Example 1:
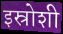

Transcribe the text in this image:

इस्रोशी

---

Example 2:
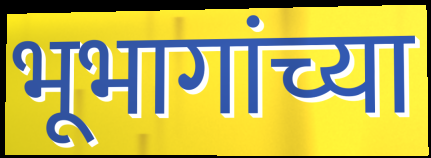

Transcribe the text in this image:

भूभागांच्या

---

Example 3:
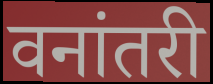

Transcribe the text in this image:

वनांतरी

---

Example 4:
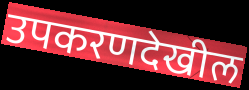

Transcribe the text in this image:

उपकरणदेखील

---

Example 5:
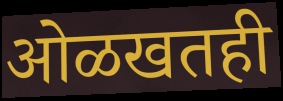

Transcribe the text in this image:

ओळखतही